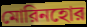
মোরিনহোর